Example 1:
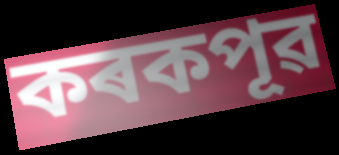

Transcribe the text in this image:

কৰকপূৱ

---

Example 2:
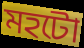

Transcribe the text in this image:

মহটো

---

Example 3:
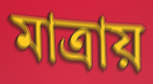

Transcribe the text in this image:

মাত্ৰায়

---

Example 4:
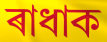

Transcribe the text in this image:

ৰাধাক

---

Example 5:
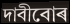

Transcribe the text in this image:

দাবীবোৰ